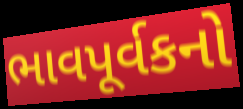
ભાવપૂર્વકનો